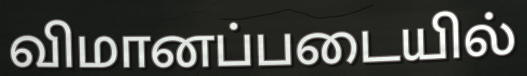
விமானப்படையில்